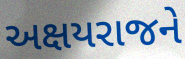
અક્ષયરાજને